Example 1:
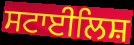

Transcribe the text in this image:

ਸਟਾਈਲਿਸ਼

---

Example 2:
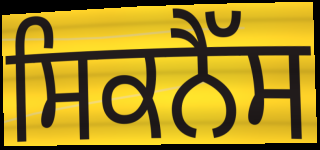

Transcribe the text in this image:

ਸਿਕਨੈੱਸ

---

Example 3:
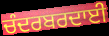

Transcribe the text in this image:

ਚੰਦਰਬਰਦਾਈ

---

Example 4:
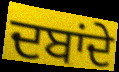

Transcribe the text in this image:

ਦਬਾਂਦੇ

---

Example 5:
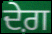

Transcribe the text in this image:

ਦੇਗ਼